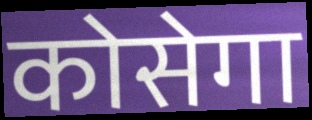
कोसेगा